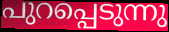
പുറപ്പെടുന്നു